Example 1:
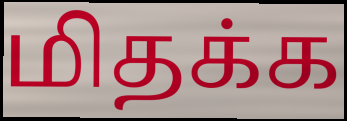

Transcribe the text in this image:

மிதக்க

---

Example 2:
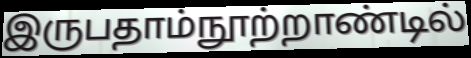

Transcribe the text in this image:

இருபதாம்நூற்றாண்டில்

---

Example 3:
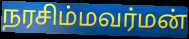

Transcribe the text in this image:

நரசிம்மவர்மன்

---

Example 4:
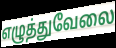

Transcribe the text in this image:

எழுத்துவேலை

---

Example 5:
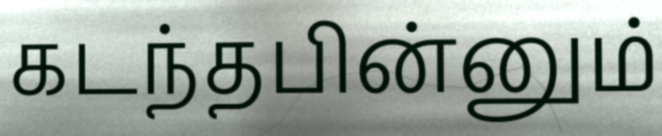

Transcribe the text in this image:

கடந்தபின்னும்